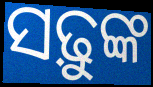
ସଢ଼ୁଙ୍କ